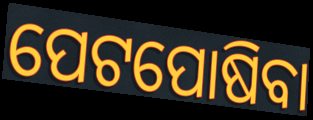
ପେଟପୋଷିବା